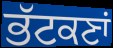
ਭੱਟਕਣਾਂ